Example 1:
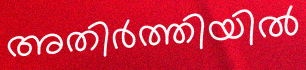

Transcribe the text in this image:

അതിർത്തിയിൽ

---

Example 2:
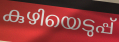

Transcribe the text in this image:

കുഴിയെടുപ്പ്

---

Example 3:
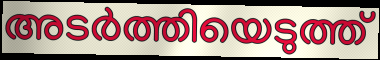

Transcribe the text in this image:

അടർത്തിയെടുത്ത്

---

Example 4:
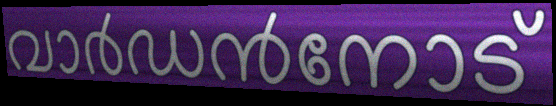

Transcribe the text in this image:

വാർഡൻനോട്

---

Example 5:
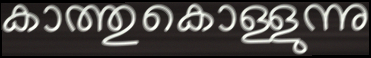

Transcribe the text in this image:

കാത്തുകൊള്ളുന്നു